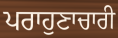
ਪਰਾਹੁਣਾਚਾਰੀ